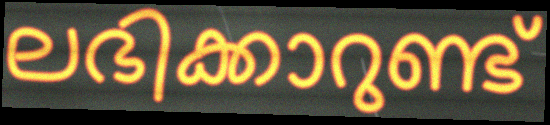
ലഭിക്കാറുണ്ട്